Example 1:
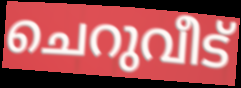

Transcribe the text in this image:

ചെറുവീട്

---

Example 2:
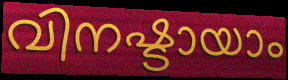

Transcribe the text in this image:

വിനഷ്ടായാം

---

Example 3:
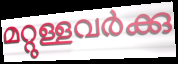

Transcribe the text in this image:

മറ്റുള്ളവർക്കു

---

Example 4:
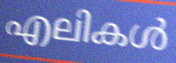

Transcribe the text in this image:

എലികൾ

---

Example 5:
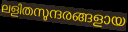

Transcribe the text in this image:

ലളിതസുന്ദരങ്ങളായ